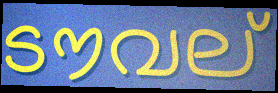
ടൗവല്